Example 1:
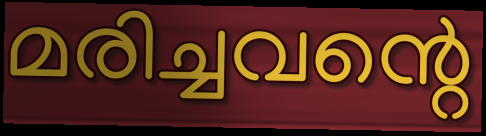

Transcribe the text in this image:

മരിച്ചവന്റെ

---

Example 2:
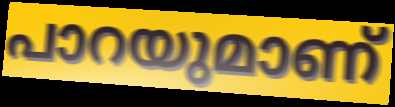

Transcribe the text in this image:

പാറയുമാണ്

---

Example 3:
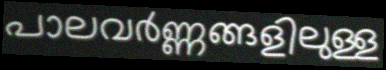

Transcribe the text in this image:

പാലവർണ്ണങ്ങളിലുള്ള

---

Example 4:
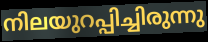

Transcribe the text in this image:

നിലയുറപ്പിച്ചിരുന്നു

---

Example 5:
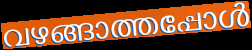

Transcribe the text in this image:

വഴങ്ങാത്തപ്പോൾ